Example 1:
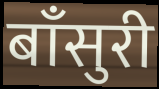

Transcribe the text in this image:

बाँसुरी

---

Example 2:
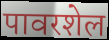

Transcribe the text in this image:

पावरशेल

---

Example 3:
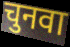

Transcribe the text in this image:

चुनवा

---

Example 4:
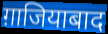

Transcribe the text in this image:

ग़ाजियाबाद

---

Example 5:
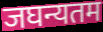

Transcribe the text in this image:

जघन्यतम